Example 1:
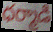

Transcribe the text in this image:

ధర్మాడి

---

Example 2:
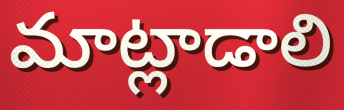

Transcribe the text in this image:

మాట్లాడాలి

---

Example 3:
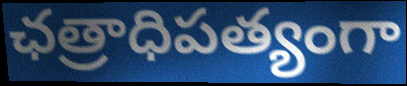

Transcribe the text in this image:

ఛత్రాధిపత్యంగా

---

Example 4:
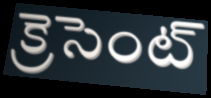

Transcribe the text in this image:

క్రెసెంట్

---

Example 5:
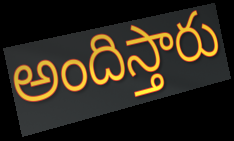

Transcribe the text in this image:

అందిస్తారు